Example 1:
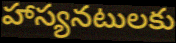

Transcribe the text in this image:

హాస్యనటులకు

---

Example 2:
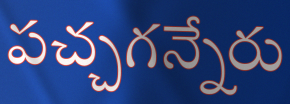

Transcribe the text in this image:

పచ్చగన్నేరు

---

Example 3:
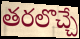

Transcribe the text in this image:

తరలొచ్చే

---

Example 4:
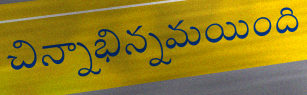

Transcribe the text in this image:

చిన్నాభిన్నమయింది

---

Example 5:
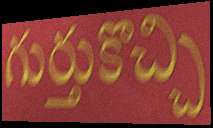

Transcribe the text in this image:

గుర్తుకొచ్చి